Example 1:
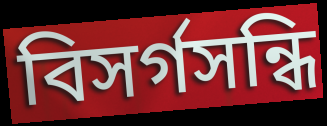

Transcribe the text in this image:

বিসর্গসন্ধি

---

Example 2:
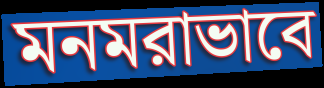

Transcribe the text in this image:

মনমরাভাবে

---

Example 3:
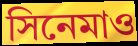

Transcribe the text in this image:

সিনেমাও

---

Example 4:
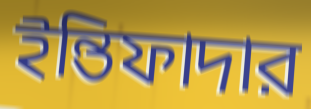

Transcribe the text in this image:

ইন্তিফাদার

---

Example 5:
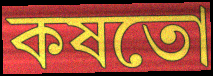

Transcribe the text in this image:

কষতো